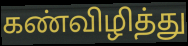
கண்விழித்து